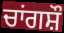
ਚਾਂਗਸ਼ੌ